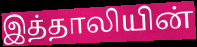
இத்தாலியின்